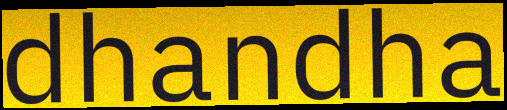
dhandha